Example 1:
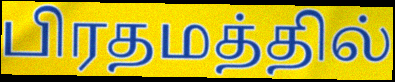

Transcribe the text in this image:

பிரதமத்தில்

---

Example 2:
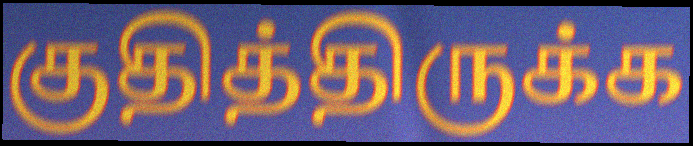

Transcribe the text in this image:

குதித்திருக்க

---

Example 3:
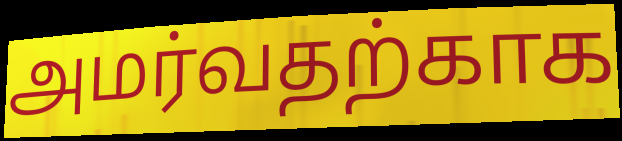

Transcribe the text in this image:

அமர்வதற்காக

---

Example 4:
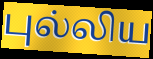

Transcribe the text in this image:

புல்லிய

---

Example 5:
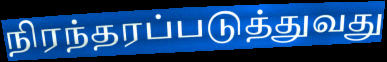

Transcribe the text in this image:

நிரந்தரப்படுத்துவது